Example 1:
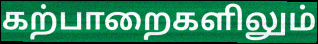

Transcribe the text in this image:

கற்பாறைகளிலும்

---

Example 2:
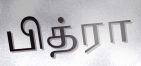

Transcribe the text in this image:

பித்ரா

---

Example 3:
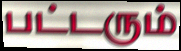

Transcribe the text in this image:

பட்டரும்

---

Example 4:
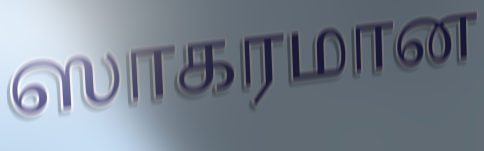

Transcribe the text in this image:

ஸாகரமான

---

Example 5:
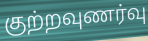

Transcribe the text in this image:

குற்றவுணர்வு